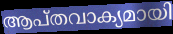
ആപ്തവാക്യമായി